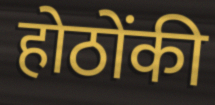
होठोंकी